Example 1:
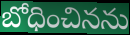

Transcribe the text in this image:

బోధించినను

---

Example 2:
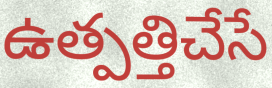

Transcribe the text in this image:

ఉత్పత్తిచేసే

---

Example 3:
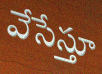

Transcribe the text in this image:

వేసేస్తూ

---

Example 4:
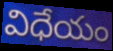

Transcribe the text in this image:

విధేయం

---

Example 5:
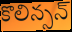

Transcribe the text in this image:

కొలిన్సన్